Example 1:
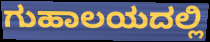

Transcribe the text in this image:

ಗುಹಾಲಯದಲ್ಲಿ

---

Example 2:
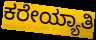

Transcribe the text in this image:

ಕರೇಯ್ಯಾತಿ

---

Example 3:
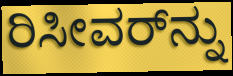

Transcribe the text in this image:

ರಿಸೀವರ್‌ನ್ನು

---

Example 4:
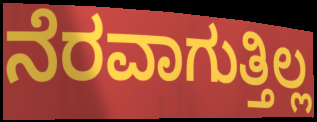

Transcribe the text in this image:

ನೆರವಾಗುತ್ತಿಲ್ಲ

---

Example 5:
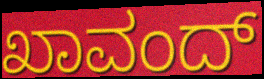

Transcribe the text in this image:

ಖಾವಂದ್